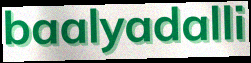
baalyadalli